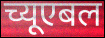
च्यूएबल